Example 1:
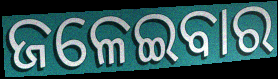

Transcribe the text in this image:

ଜଳେଇବାର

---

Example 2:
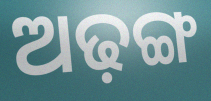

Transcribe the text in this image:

ଅଢ଼ଙ୍ଗ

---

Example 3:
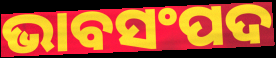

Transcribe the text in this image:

ଭାବସଂପଦ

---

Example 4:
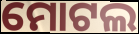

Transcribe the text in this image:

ମୋଟଲ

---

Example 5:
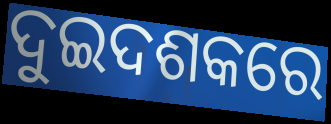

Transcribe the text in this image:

ଦୁଇଦଶକରେ